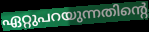
ഏറ്റുപറയുന്നതിന്റെ